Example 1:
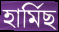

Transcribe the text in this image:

হাৰ্মিছ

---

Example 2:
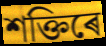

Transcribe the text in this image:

শক্তিৰে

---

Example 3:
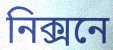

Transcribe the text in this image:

নিক্সনে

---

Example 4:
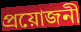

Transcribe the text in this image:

প্ৰয়োজনী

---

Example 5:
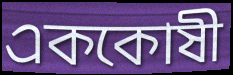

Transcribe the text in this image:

এককোষী